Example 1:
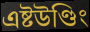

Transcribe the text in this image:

এষ্টউণ্ডিং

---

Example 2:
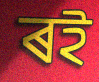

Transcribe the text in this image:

ৰই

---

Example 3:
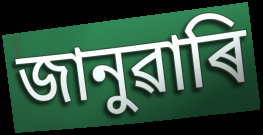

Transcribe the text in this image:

জানুৱাৰি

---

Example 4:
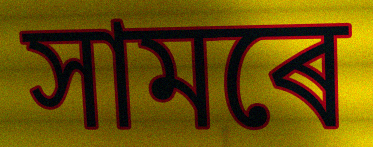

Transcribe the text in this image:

সামৰে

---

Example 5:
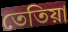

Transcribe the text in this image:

তেতিয়া